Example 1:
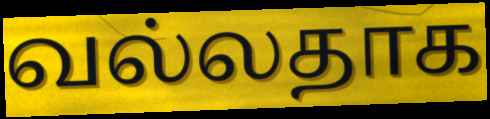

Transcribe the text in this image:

வல்லதாக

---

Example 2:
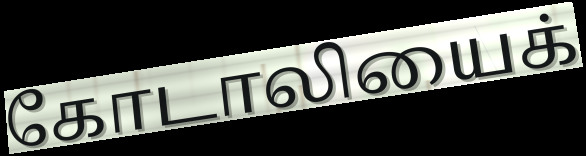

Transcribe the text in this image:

கோடாலியைக்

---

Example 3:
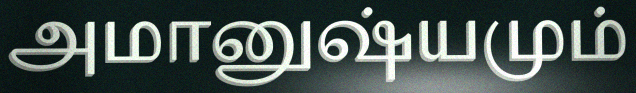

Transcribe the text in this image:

அமானுஷ்யமும்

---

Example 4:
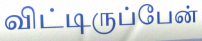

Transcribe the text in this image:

விட்டிருப்பேன்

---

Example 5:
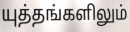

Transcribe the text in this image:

யுத்தங்களிலும்